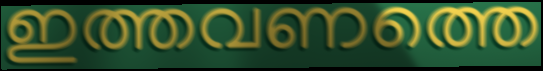
ഇത്തവണത്തെ